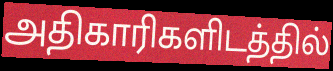
அதிகாரிகளிடத்தில்